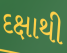
દક્ષાથી